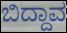
ಬಿದ್ದಾವ